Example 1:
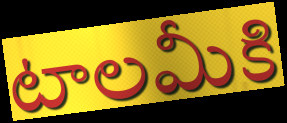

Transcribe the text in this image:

టాలమీకి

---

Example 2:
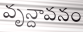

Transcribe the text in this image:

వృన్దావనం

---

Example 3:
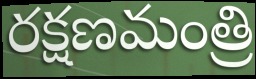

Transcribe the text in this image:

రక్షణమంత్రి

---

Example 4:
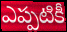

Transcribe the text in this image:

ఎప్పటికీ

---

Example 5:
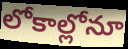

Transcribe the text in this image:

లోకాల్లోనూ